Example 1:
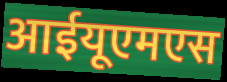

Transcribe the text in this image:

आईयूएमएस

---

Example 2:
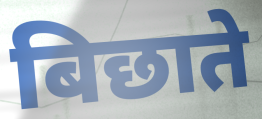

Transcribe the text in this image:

बिछाते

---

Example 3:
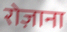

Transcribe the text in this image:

रोज़ाना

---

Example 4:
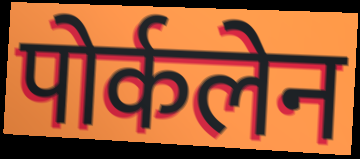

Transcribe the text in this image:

पोर्कलेन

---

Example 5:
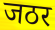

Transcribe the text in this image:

जठर